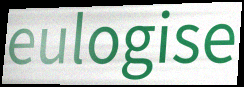
eulogise